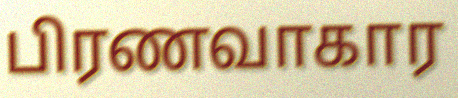
பிரணவாகார